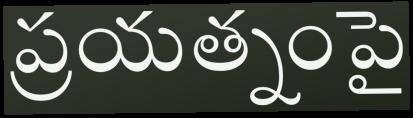
ప్రయత్నంపై